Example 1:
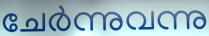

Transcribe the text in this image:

ചേർന്നുവന്നു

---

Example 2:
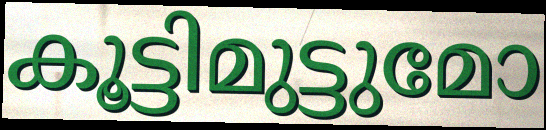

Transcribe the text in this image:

കൂട്ടിമുട്ടുമോ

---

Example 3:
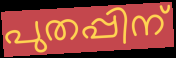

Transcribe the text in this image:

പുതപ്പിന്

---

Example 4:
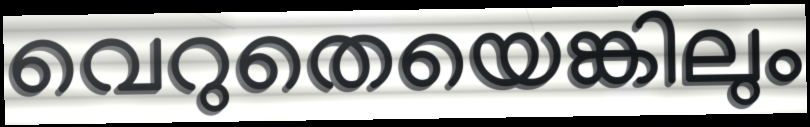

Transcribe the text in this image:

വെറുതെയെങ്കിലും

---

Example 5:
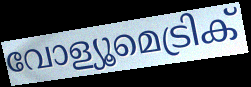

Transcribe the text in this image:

വോള്യൂമെട്രിക്